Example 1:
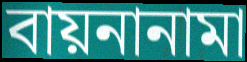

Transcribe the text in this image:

বায়নানামা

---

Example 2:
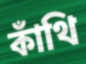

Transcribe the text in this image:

কাঁথি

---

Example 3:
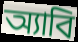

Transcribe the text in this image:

অ্যাবি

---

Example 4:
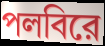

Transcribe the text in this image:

পলবিরে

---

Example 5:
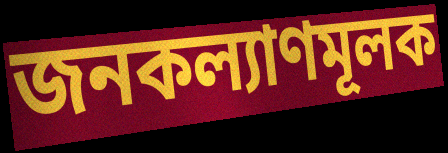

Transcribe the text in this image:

জনকল্যাণমূলক